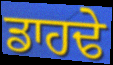
ਡਾਹਢੇ